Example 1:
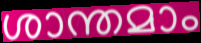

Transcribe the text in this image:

ശാന്തമാം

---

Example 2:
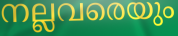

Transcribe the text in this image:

നല്ലവരെയും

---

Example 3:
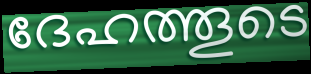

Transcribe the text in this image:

ദേഹത്തൂടെ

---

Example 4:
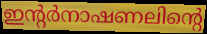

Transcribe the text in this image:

ഇന്റർനാഷണലിന്റെ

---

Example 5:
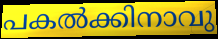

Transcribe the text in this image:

പകൽക്കിനാവു